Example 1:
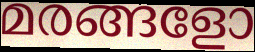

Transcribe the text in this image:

മരങ്ങളോ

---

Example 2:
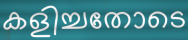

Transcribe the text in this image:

കളിച്ചതോടെ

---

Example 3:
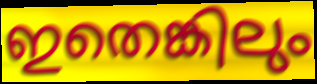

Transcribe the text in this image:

ഇതെങ്കിലും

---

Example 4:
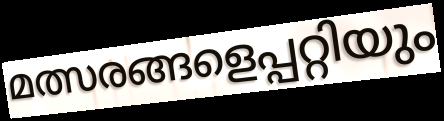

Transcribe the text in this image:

മത്സരങ്ങളെപ്പറ്റിയും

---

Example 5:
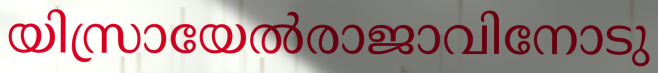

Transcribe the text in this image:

യിസ്രായേൽരാജാവിനോടു